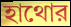
হাথোর